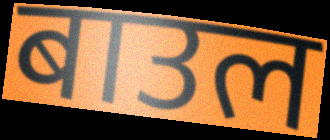
बाउल